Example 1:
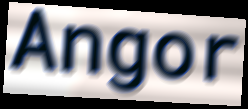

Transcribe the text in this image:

Angor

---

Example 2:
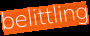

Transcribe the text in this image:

belittling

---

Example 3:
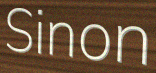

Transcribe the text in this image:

Sinon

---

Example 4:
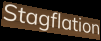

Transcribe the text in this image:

Stagflation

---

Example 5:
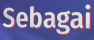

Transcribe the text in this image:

Sebagai